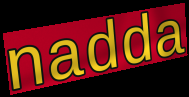
nadda